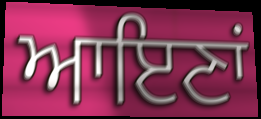
ਆਇਣਾਂ